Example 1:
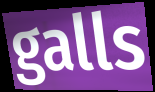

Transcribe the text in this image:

galls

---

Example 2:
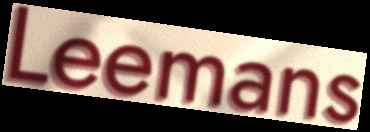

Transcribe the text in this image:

Leemans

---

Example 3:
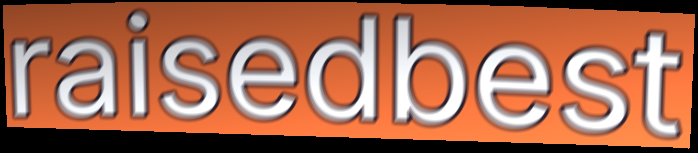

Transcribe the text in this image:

raisedbest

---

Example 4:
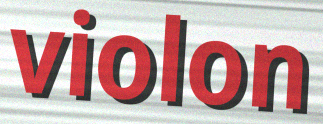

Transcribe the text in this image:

violon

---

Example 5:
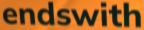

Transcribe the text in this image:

endswith